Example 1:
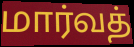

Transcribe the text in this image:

மார்வத்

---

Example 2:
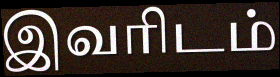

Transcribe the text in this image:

இவரிடம்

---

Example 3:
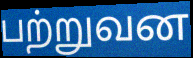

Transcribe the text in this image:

பற்றுவன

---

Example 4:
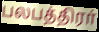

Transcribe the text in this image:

பலபத்திரர்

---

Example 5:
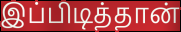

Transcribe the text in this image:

இப்பிடித்தான்